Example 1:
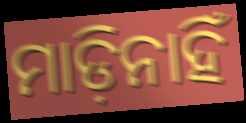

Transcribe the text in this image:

ମାଡ଼ିନାହିଁ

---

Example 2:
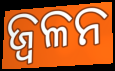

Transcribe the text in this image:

ଜ୍ଵଳନ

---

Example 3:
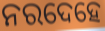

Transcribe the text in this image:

ନରଦେହେ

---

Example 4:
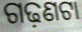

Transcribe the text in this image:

ଗଢ଼ଣଟା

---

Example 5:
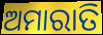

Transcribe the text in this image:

ଅମାରାତି